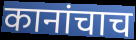
कानांचाच